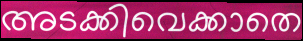
അടക്കിവെക്കാതെ